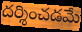
దర్శించడమే